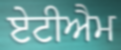
ਏਟੀਐਮ